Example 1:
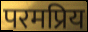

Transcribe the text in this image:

परमप्रिय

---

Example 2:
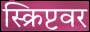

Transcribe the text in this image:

स्क्रिप्टवर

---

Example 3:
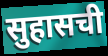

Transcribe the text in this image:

सुहासची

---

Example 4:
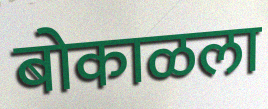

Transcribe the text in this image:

बोकाळला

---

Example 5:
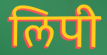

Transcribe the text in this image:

लिपी